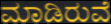
ಮಾಡಿರುವೆ